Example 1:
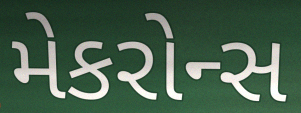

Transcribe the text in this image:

મેકરોન્સ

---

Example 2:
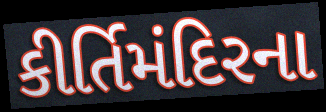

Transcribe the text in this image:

કીર્તિમંદિરના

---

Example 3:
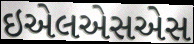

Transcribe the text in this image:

ઇએલએસએસ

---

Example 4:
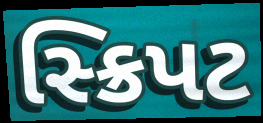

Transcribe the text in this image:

સ્ક્રિપટ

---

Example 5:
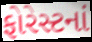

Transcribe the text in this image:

ફોરેસ્ટનાં